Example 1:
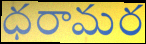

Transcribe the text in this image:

ధరామర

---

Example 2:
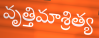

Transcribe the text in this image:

వృత్తిమాశ్రిత్య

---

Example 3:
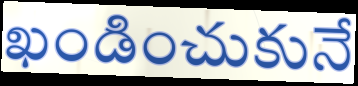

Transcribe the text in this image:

ఖండించుకునే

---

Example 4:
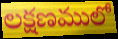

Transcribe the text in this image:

లక్షణములో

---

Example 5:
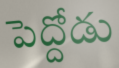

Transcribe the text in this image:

పెద్దోడు